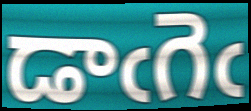
డాఁగెఁ